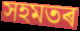
সহমতৰ